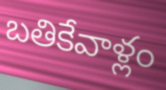
బతికేవాళ్లం